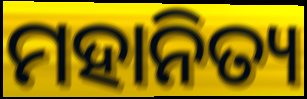
ମହାନିତ୍ୟ